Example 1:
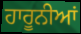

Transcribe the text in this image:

ਹਾਰੂਨੀਆਂ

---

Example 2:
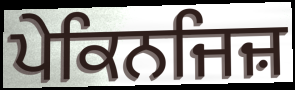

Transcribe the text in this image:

ਪੇਕਿਨਜਿਜ਼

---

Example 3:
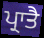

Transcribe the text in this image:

ਪ੍ਰਾਤੈ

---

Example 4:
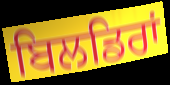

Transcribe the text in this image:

ਬਿਲਡਿਰਾਂ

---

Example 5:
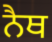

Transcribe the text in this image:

ਨੈਥ